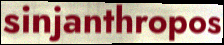
sinjanthropos